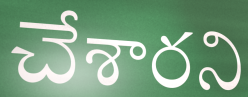
చేశారని